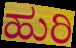
ಹುರಿ